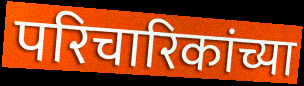
परिचारिकांच्या